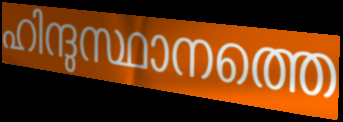
ഹിന്ദുസ്ഥാനത്തെ